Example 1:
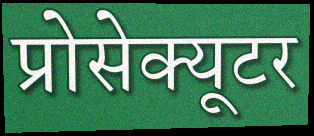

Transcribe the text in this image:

प्रोसेक्यूटर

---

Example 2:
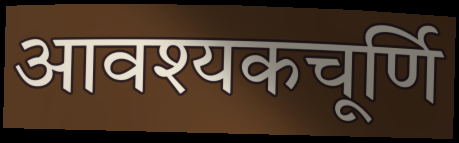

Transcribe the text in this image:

आवश्यकचूर्णि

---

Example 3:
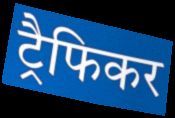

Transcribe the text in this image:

ट्रैफिकर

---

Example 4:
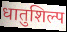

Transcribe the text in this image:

धातुशिल्प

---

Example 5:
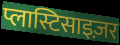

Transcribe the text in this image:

प्लास्टिसाइज़र